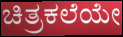
ಚಿತ್ರಕಲೆಯೇ